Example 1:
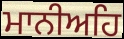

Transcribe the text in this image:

ਮਾਨੀਅਹਿ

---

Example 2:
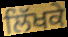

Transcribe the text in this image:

ਲਿੱਖਕੇ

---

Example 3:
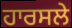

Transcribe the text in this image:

ਹਾਰਸਲੇ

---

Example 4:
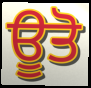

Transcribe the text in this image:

ਊਤੋ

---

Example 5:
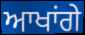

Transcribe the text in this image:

ਆਖਾਂਗੇ